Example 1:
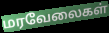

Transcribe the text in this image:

மரவேலைகள்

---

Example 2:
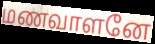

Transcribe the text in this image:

மணவாளனே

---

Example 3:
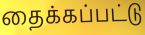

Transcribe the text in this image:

தைக்கப்பட்டு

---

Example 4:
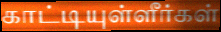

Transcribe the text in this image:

காட்டியுள்ளீர்கள்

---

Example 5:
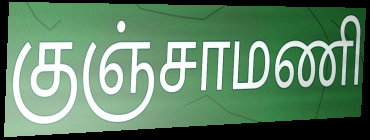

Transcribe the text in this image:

குஞ்சாமணி